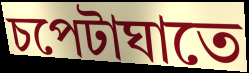
চপেটাঘাতে